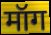
मॉग